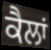
ਕੈਲਾਂ